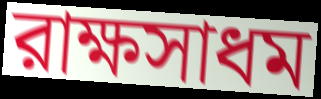
রাক্ষসাধম